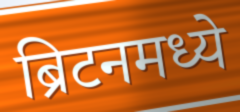
ब्रिटनमध्ये